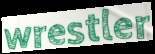
wrestler